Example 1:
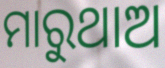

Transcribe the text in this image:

ମାରୁଥାଅ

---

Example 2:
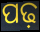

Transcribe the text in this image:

ପଢ଼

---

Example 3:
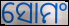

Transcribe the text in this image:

ସୋମଂ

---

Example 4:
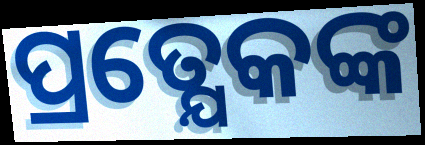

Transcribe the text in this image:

ପ୍ରତ୍ଯେକଙ୍କ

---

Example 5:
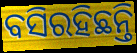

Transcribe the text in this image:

ବସିରହିଛନ୍ତି